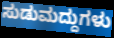
ಸುಡುಮದ್ದುಗಳು